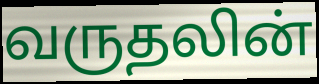
வருதலின்